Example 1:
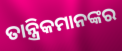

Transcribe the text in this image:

ତାନ୍ତ୍ରିକମାନଙ୍କର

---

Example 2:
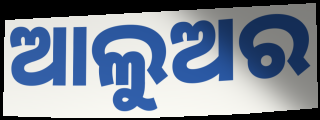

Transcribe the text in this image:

ଆଲୁଅର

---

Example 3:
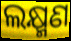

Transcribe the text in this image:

ଲକ୍ଷ୍ମଣ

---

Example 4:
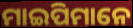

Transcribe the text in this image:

ମାଇପିମାନେ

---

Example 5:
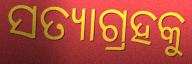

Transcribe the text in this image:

ସତ୍ୟାଗ୍ରହକୁ